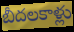
బీదలకాళ్లు